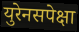
युरेनसपेक्षा